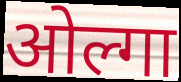
ओल्गा